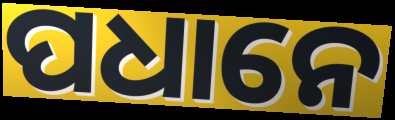
ପଧାନେ